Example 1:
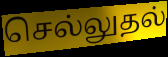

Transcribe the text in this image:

செல்லுதல்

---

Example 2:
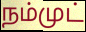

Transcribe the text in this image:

நம்முட்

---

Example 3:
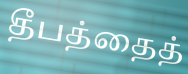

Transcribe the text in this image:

தீபத்தைத்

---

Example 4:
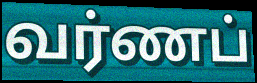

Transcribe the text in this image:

வர்ணப்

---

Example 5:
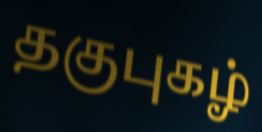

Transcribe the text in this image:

தகுபுகழ்